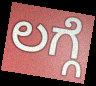
ಲಗ್ಗೆ